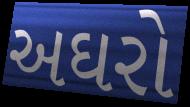
અઘરો